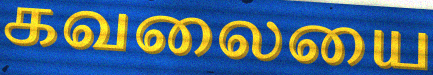
கவலையை